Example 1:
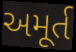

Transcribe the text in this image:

અમૂર્ત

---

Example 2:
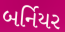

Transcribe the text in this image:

બર્નિયર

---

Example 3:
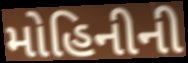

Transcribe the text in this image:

મોહિનીની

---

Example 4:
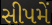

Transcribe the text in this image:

સીપમેં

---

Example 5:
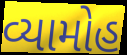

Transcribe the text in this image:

વ્યામોહ